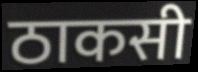
ठाकसी